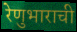
रेणुभाराची